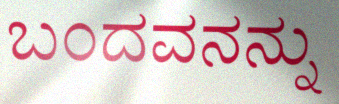
ಬಂದವನನ್ನು